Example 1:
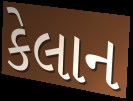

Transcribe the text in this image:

કેલાન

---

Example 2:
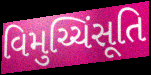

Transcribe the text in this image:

વિમુચ્ચિંસૂતિ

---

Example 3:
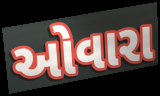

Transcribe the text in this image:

ઓવારા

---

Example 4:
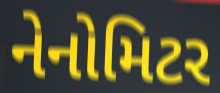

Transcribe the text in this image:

નેનોમિટર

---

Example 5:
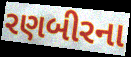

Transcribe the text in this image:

રણબીરના